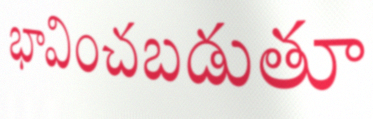
భావించబడుతూ